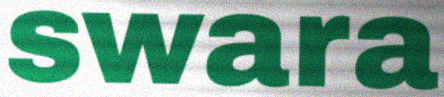
swara